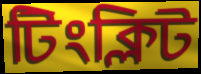
টিংক্লিট